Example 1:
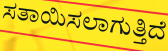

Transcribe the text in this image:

ಸತಾಯಿಸಲಾಗುತ್ತಿದೆ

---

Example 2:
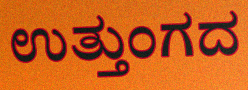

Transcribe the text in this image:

ಉತ್ತುಂಗದ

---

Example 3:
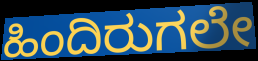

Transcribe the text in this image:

ಹಿಂದಿರುಗಲೇ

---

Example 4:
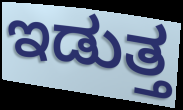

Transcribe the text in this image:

ಇಡುತ್ತ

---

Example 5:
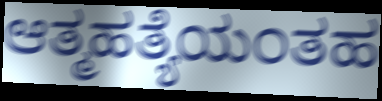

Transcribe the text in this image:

ಆತ್ಮಹತ್ಯೆಯಂತಹ